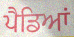
ਪੈਡਿਆਂ